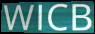
WICB